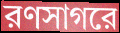
রণসাগরে